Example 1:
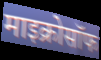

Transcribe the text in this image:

माइक्रोसॉफ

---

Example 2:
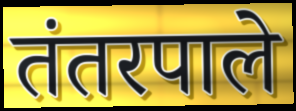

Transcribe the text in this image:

तंतरपाले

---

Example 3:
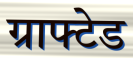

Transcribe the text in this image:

ग्राफ्टेड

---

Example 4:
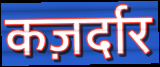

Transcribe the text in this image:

कज़र्दार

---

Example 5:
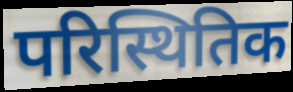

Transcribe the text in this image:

परिस्थितिक